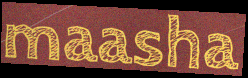
maasha